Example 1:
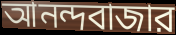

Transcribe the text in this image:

আনন্দবাজার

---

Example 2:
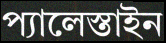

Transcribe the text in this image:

প্যালেস্তাইন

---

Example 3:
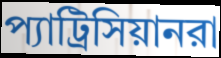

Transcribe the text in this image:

প্যাট্রিসিয়ানরা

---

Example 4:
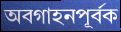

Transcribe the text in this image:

অবগাহনপূর্বক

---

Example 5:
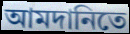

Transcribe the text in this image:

আমদানিতে